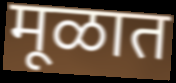
मूळात